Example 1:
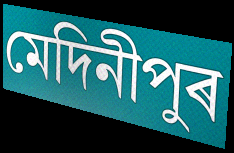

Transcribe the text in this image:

মেদিনীপুৰ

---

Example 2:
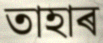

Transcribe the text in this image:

তাহাৰ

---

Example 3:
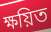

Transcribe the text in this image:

ক্ষয়িত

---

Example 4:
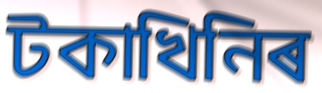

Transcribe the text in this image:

টকাখিনিৰ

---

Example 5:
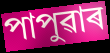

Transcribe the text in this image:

পাপুৱাৰ